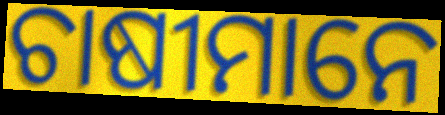
ଚାଷୀମାନେ